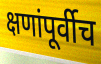
क्षणांपूर्वीच